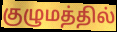
குழுமத்தில்